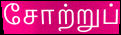
சோற்றுப்